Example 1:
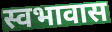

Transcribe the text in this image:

स्वभावास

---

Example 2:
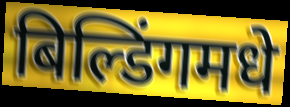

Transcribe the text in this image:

बिल्डिंगमधे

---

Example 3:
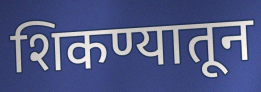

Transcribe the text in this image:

शिकण्यातून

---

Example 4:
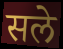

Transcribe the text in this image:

सले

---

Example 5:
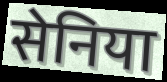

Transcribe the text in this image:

सेनिया